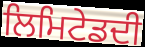
ਲਿਮਿਟੇਡਦੀ